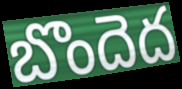
బొందెద